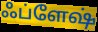
ஃப்ளேஷ்